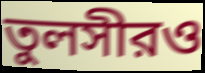
তুলসীরও